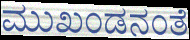
ಮುಖಂಡನಂತೆ